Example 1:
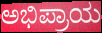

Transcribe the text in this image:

ಅಭಿಪ್ರಾಯ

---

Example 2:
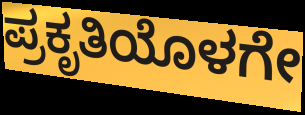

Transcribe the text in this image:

ಪ್ರಕೃತಿಯೊಳಗೇ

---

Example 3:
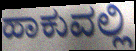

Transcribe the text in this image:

ಹಾಕುವಲ್ಲಿ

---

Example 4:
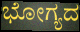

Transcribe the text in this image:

ಭೋಗ್ಯದ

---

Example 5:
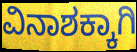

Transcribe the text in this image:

ವಿನಾಶಕ್ಕಾಗಿ